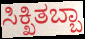
ಸಿಕ್ಖಿತಬ್ಬಾ